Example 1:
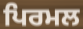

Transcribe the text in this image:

ਪਿਰਮਲ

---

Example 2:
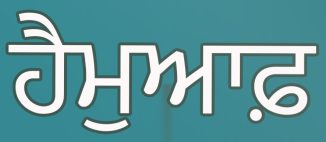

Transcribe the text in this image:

ਹੈਮੁਆਫ਼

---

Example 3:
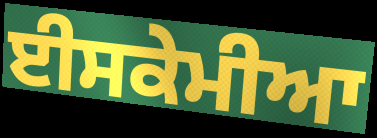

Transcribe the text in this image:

ਈਸਕੇਮੀਆ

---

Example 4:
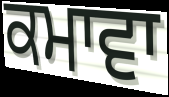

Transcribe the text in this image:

ਕਮਾਵਾ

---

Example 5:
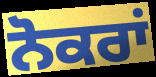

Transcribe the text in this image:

ਨੋਕਰਾਂ